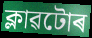
ক্লাৱটোৰ